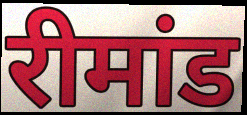
रीमांड